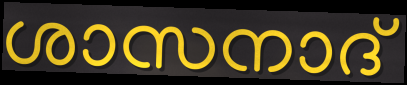
ശാസനാദ്